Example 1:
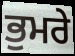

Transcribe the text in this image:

ਭੁਮਰੇ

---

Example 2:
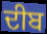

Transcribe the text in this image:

ਦੀਬ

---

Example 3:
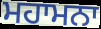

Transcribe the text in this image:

ਮਹਾਮਨਾ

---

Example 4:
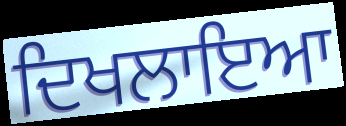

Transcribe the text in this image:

ਦਿਖਲਾਇਆ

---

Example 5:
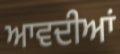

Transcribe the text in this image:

ਆਵਦੀਆਂ